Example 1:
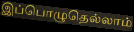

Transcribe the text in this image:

இப்பொழுதெல்லாம்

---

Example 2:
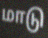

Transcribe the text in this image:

மாடு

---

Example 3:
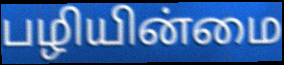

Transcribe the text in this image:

பழியின்மை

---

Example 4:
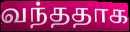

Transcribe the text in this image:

வந்ததாக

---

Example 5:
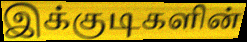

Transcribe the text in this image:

இக்குடிகளின்